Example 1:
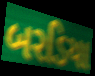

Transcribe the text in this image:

બરડિયા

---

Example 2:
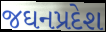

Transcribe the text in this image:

જઘનપ્રદેશ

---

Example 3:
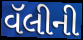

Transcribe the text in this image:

વૅલીની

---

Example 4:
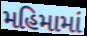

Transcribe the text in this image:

મહિમામાં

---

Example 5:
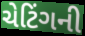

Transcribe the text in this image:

ચેટિંગની